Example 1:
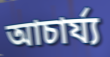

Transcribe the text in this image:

আচাৰ্য্য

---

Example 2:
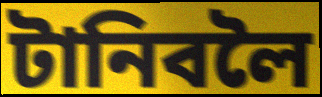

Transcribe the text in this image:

টানিবলৈ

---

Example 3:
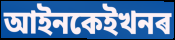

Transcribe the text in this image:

আইনকেইখনৰ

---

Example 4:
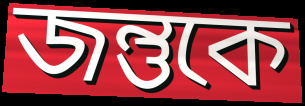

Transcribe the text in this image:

জন্তুকে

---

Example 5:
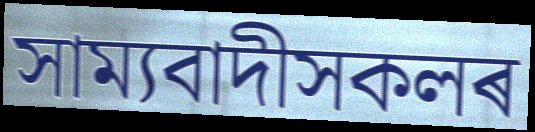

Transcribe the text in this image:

সাম্যবাদীসকলৰ